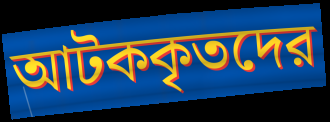
আটককৃতদের